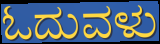
ಓದುವಳು